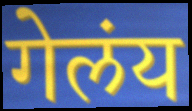
गेलंय